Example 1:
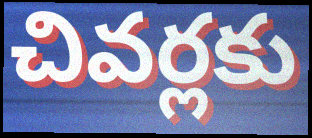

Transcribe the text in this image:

చివర్లకు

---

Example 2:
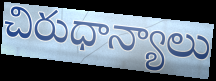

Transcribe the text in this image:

చిరుధాన్యాలు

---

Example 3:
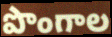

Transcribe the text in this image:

పొంగాల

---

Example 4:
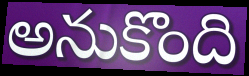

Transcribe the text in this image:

అనుకొంది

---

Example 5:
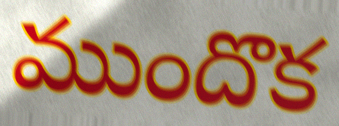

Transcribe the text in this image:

ముందొక